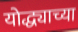
योद्ध्याच्या